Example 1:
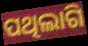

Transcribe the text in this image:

ପଥିଲାଗି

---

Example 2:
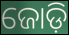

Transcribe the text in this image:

ଜୋଡ଼ି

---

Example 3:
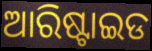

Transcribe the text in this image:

ଆରିଷ୍ଟାଇଡ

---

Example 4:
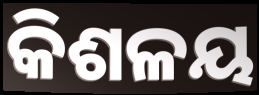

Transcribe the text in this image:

କିଶଳୟ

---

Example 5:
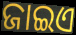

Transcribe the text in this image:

ଜାଇଏ